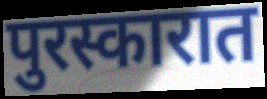
पुरस्कारात